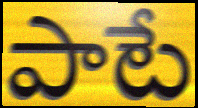
పాటే